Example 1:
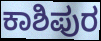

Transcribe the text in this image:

ಕಾಶಿಪುರ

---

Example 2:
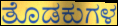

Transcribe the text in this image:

ತೊಡಕುಗಳ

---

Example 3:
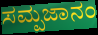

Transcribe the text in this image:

ಸಮ್ಪಜಾನಂ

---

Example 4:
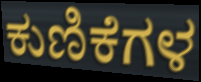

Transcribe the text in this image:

ಕುಣಿಕೆಗಳ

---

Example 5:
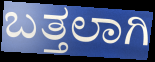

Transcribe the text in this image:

ಬತ್ತಲಾಗಿ